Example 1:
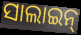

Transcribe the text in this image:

ସାଲାଇନ୍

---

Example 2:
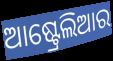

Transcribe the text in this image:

ଆଷ୍ଟ୍ରେଲିଆର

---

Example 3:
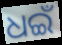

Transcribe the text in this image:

ଧଇଁ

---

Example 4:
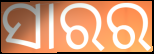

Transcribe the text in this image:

ସାରର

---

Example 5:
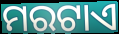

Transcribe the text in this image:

ମରଟାଏ